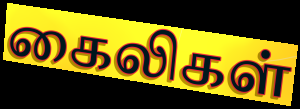
கைலிகள்